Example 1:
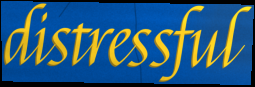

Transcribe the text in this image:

distressful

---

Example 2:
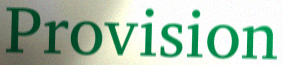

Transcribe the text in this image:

Provision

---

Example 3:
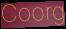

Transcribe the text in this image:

Coorg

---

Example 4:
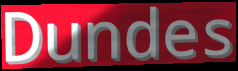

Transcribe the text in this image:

Dundes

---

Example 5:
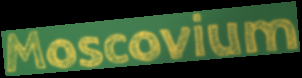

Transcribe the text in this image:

Moscovium